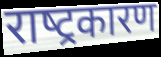
राष्ट्रकारण